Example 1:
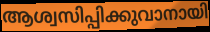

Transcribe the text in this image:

ആശ്വസിപ്പിക്കുവാനായി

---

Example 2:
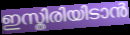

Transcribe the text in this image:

ഇസ്തിരിയിടാൻ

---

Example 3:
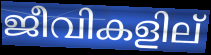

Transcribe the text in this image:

ജീവികളില്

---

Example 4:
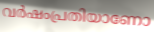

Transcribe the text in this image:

വർഷംപ്രതിയാണോ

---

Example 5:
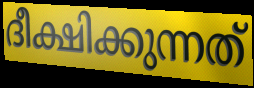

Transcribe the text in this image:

ദീക്ഷിക്കുന്നത്